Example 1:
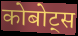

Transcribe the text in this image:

कोबोट्स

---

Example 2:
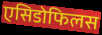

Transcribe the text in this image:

एसिडोफिलस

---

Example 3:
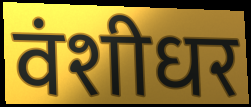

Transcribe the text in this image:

वंशीधर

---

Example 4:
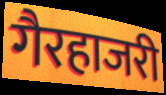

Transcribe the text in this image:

गैरहाजरी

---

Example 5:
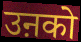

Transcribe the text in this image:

उऩको